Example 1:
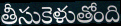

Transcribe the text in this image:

తీసుకెళుతోంది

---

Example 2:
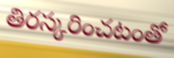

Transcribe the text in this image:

తిరస్కరించటంతో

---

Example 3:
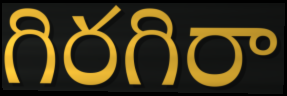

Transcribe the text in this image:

గిరగిరా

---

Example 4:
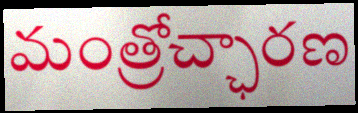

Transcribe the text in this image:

మంత్రోచ్ఛారణ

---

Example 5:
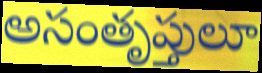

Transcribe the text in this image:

అసంతృప్తులూ